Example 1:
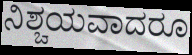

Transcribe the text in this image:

ನಿಶ್ಚಯವಾದರೂ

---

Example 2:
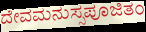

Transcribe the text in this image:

ದೇವಮನುಸ್ಸಪೂಜಿತಂ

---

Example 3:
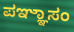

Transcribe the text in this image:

ಪಞ್ಞಾಸಂ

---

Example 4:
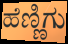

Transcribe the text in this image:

ಹೆಣ್ಣಿಗು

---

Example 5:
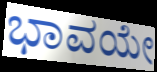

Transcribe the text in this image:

ಭಾವಯೇ